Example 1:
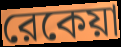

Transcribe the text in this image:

রেকেয়া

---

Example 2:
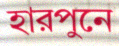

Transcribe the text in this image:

হারপুনে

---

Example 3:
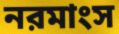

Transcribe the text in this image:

নরমাংস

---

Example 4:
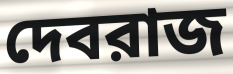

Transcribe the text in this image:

দেবরাজ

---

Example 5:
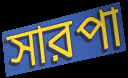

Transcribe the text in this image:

সারপা